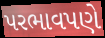
પરભાવપણે